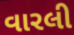
વારલી